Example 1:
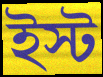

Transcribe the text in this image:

ইস্ট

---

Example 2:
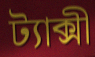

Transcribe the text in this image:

ট্যাক্সী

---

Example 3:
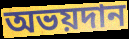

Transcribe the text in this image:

অভয়দান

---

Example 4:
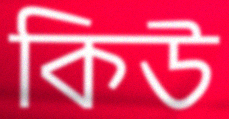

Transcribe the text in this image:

কিউ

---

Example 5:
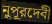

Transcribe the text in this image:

নুপূরদেবী